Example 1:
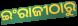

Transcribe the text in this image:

ଇଂରାଜୀଠାରୁ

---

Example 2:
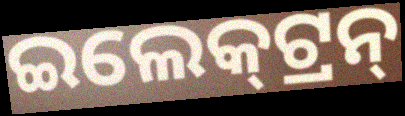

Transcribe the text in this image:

ଇଲେକ୍‍ଟ୍ରନ୍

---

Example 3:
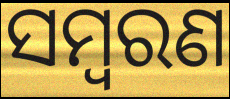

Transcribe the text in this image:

ସମ୍ଵରଣ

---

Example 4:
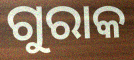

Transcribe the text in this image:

ଗୁରାକ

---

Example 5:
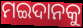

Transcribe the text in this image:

ମଇଦାନକୁ